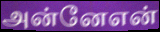
அன்னேஎன்